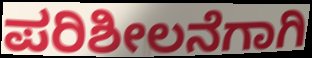
ಪರಿಶೀಲನೆಗಾಗಿ